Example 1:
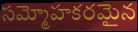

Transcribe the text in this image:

సమ్మోహకరమైన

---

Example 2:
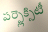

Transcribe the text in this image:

పర్ప్లెక్సిటీ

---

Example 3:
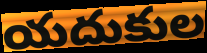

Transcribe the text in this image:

యదుకుల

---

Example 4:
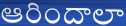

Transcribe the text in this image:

ఆరిందాలా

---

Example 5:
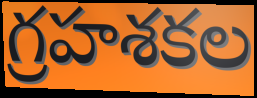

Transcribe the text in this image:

గ్రహశకల